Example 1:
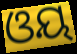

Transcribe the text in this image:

ଓୟ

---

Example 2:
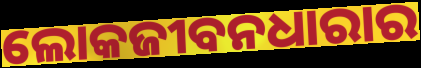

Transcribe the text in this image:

ଲୋକଜୀବନଧାରାର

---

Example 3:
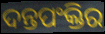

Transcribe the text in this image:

ଦନ୍ତପଂକ୍ତିର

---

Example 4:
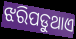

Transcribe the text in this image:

ଝରିପଡୁଥାଏ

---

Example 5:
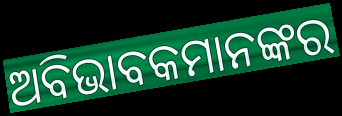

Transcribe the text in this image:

ଅବିଭାବକମାନଙ୍କର